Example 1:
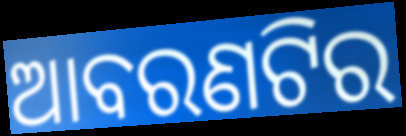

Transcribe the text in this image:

ଆବରଣଟିର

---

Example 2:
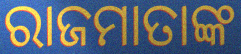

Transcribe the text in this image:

ରାଜମାତାଙ୍କ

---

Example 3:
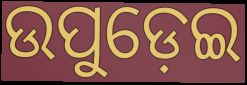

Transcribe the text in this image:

ଉପୁଡ଼େଇ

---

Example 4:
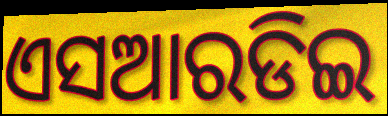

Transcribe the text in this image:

ଏସଆରଡିଇ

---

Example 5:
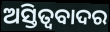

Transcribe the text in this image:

ଅସ୍ତିତ୍ବବାଦର